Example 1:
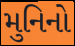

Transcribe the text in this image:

મુનિનો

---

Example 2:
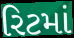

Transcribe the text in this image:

રિટમાં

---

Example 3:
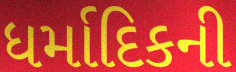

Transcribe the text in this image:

ધર્માદિકની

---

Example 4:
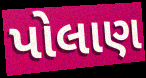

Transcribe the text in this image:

પોલાણ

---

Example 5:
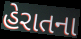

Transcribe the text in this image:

હેરાતના